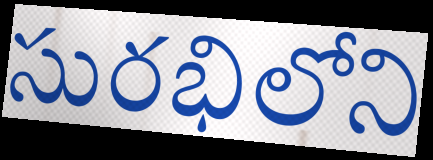
సురభిలోని